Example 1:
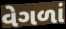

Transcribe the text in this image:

વેગળાં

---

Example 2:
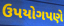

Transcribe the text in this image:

ઉપયોગપણે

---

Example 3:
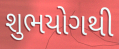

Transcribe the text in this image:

શુભયોગથી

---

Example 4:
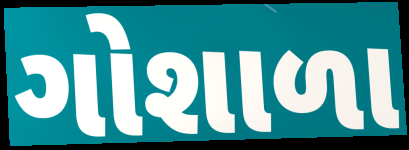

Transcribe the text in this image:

ગોશાળા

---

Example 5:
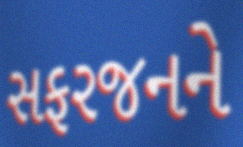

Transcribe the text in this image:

સફરજનને